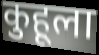
कुहूला